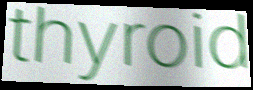
thyroid